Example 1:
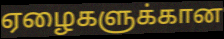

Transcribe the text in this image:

ஏழைகளுக்கான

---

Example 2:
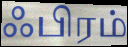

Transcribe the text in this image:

ஃபிரம்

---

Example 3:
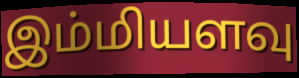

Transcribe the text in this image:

இம்மியளவு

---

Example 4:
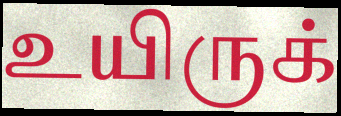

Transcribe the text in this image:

உயிருக்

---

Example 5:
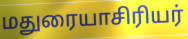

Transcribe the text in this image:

மதுரையாசிரியர்